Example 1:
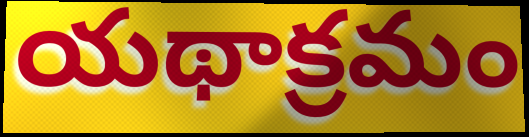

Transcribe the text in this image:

యథాక్రమం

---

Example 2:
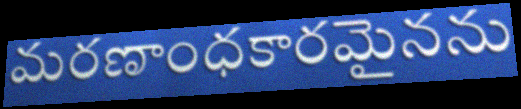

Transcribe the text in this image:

మరణాంధకారమైనను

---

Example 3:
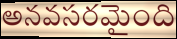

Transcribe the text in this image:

అనవసరమైంది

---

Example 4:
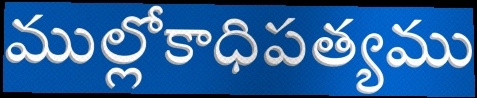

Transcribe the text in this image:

ముల్లోకాధిపత్యము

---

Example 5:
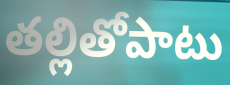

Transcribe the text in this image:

తల్లితోపాటు